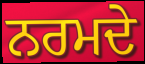
ਨਰਮਦੇ